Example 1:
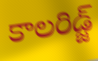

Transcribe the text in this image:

కాలరిడ్జ్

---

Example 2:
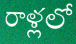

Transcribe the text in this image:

రాళ్లలో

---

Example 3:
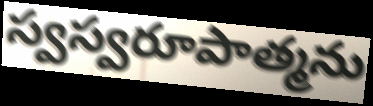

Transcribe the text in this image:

స్వస్వరూపాత్మను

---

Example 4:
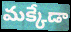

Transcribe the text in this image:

మక్కేడా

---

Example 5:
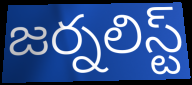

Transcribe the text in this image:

జర్నలిస్ట్